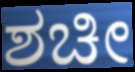
ಶಚೀ